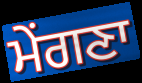
ਮੇਂਗਣਾ